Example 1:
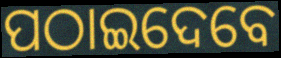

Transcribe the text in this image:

ପଠାଇଦେବେ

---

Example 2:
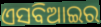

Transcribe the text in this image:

ଏସବିଆଇର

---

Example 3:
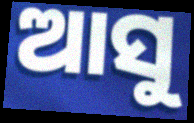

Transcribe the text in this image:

ଆସୁ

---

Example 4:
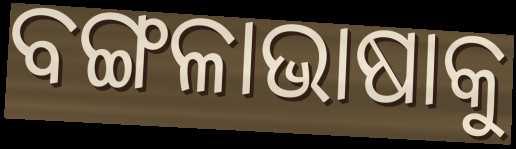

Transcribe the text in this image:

ବଙ୍ଗଳାଭାଷାକୁ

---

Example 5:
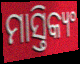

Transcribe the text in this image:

ମାସ୍ତିକ୍ୟଂ